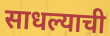
साधल्याची